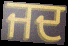
ਜਦ